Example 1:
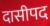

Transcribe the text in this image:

दासीपद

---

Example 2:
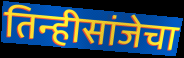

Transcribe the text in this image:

तिन्हीसांजेचा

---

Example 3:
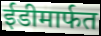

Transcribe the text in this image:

ईडीमार्फत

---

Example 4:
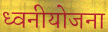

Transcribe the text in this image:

ध्वनीयोजना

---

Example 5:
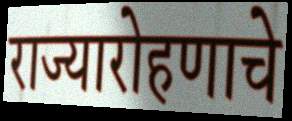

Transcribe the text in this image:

राज्यारोहणाचे